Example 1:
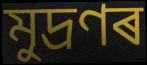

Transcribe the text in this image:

মুদ্ৰণৰ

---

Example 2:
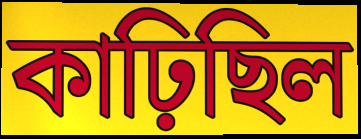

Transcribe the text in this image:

কাঢ়িছিল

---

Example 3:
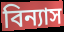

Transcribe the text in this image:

বিন্যাস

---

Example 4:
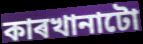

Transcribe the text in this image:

কাৰখানাটো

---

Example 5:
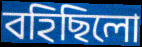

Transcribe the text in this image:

বহিছিলো